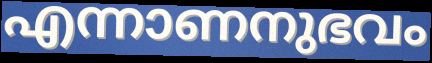
എന്നാണനുഭവം